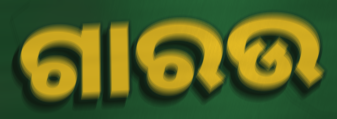
ଗାରଉ